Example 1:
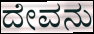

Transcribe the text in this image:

ದೇವನು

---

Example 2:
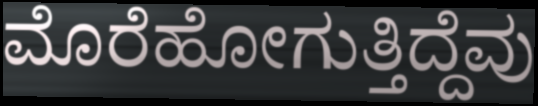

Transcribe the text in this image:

ಮೊರೆಹೋಗುತ್ತಿದ್ದೆವು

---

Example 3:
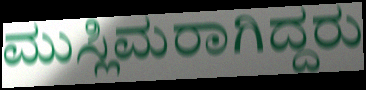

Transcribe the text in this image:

ಮುಸ್ಲಿಮರಾಗಿದ್ದರು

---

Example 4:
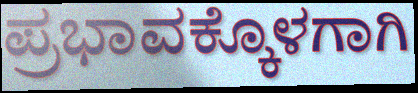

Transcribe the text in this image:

ಪ್ರಭಾವಕ್ಕೊಳಗಾಗಿ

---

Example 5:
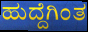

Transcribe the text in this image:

ಹುದ್ದೆಗಿಂತ